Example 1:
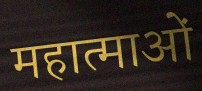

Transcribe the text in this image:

महात्माओं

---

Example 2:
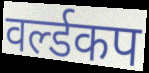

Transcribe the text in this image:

वर्ल्डकप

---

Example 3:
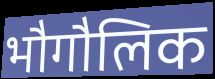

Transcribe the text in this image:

भौगौलिक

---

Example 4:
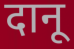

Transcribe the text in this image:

दानू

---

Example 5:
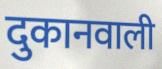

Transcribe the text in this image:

दुकानवाली